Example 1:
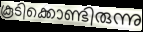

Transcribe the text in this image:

കൂടിക്കൊണ്ടിരുന്നു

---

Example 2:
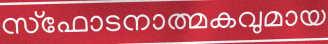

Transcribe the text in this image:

സ്ഫോടനാത്മകവുമായ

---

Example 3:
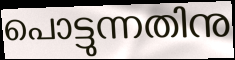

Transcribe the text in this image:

പൊട്ടുന്നതിനു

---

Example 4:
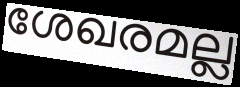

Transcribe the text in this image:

ശേഖരമല്ല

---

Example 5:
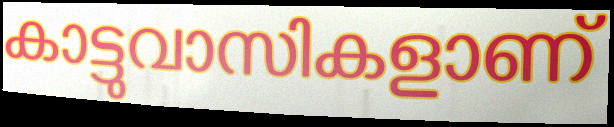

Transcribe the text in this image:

കാട്ടുവാസികളാണ്